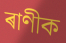
ৰাণীক